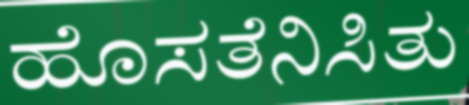
ಹೊಸತೆನಿಸಿತು